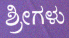
ಶ್ರೀಗಳು